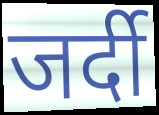
जर्दी